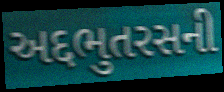
અદ્દભુતરસની